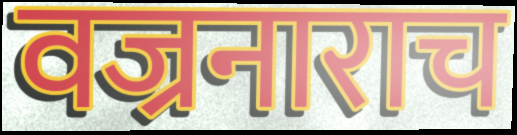
वज्रनाराच